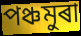
পঞ্চমুৰা